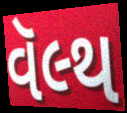
વૅલ્થ